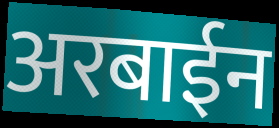
अरबाईन